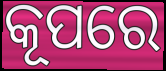
କୂପରେ